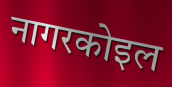
नागरकोइल